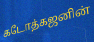
கடோத்கஜனின்